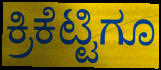
ಕ್ರಿಕೆಟ್ಟಿಗೂ